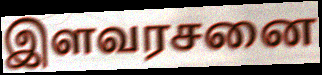
இளவரசனை